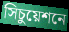
সিচুয়েশনে